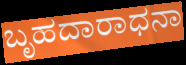
ಬೃಹದಾರಾಧನಾ